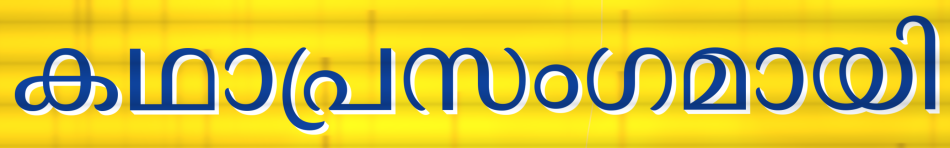
കഥാപ്രസംഗമായി